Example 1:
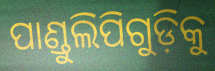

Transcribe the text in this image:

ପାଣ୍ଡୁଲିପିଗୁଡ଼ିକୁ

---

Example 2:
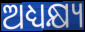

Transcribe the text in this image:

ଅଧ୍ୟକ୍ଷ୍ୟ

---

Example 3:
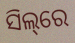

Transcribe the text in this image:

ସିଲ୍‌ରେ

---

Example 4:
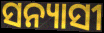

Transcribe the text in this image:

ସନ୍ୟାସୀ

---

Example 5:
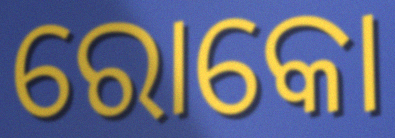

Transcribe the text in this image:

ରୋକୋ